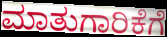
ಮಾತುಗಾರಿಕೆಗೆ